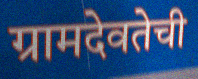
ग्रामदेवतेची